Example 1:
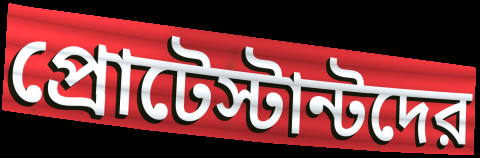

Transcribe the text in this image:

প্রোটেস্টান্টদের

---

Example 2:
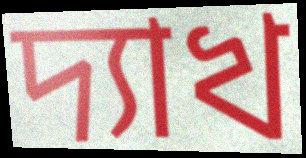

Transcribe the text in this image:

দ্যাখ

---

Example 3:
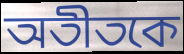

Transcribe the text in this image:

অতীতকে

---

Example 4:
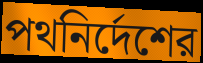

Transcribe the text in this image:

পথনির্দেশের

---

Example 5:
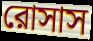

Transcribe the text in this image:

রোসাস